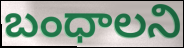
బంధాలని